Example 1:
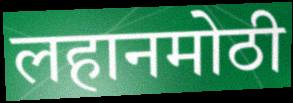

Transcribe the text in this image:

लहानमोठी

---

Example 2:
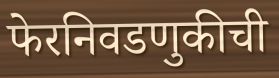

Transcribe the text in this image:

फेरनिवडणुकीची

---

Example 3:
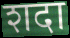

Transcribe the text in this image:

शदा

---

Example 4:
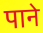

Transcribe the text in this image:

पाने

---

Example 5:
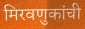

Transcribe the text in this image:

मिरवणुकांची